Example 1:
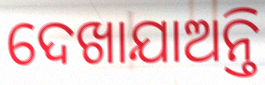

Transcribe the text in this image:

ଦେଖାଯାଅନ୍ତି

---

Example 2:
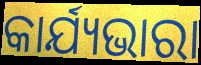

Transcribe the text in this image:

କାର୍ଯ୍ୟଭାରା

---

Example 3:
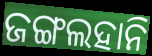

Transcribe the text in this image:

ଜଙ୍ଗଲହାନି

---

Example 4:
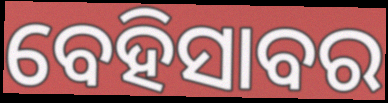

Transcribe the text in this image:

ବେହିସାବର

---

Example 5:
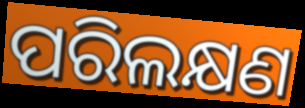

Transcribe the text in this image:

ପରିଲକ୍ଷଣ